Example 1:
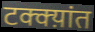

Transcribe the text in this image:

टक्क्य़ांत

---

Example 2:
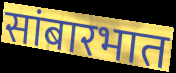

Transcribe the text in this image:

सांबारभात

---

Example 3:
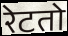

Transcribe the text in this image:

रेटतो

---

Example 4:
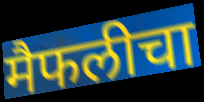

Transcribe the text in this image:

मैफलीचा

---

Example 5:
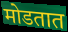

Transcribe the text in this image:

मोडतात